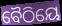
ବୈଠିୟେ